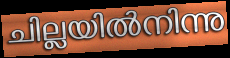
ചില്ലയിൽനിന്നു